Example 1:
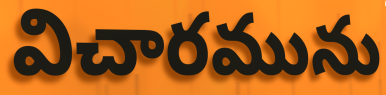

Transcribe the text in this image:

విచారమును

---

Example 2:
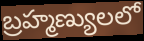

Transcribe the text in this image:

బ్రహ్మణ్యులలో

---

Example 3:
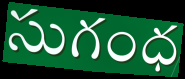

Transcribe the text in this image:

సుగంధ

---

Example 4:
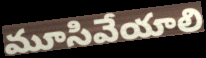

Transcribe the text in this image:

మూసివేయాలి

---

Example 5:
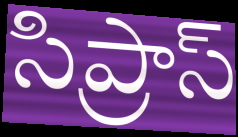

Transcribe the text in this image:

సిప్రాస్